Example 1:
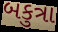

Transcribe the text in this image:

બકુત્રા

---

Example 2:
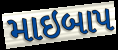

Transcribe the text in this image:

માઇબાપ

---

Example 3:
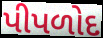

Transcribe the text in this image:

પીપળોદ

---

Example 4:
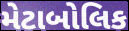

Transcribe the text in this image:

મેટાબોલિક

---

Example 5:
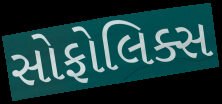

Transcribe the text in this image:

સોફોલિક્સ